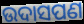
ଉଦାସପଣ